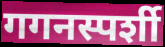
गगनस्पर्शी